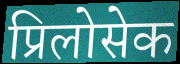
प्रिलोसेक